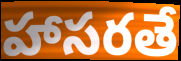
హాసరతే